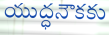
యుద్ధనౌకకు